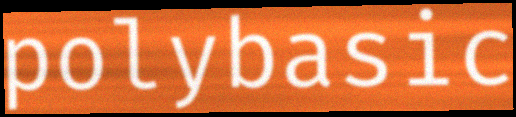
polybasic